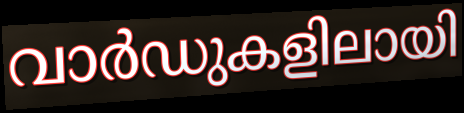
വാർഡുകളിലായി